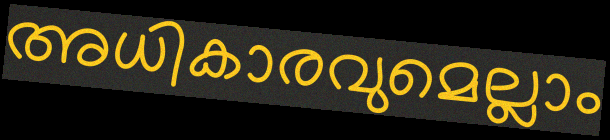
അധികാരവുമെല്ലാം